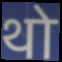
थो